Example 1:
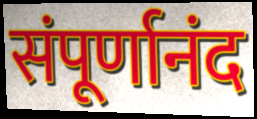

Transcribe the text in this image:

संपूर्णानंद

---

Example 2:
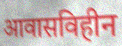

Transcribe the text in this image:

आवासविहीन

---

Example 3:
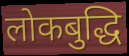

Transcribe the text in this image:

लोकबुद्धि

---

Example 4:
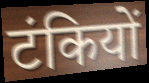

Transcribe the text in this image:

टंकियों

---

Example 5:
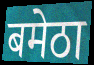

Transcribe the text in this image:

बमेठा